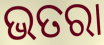
ଭତରା